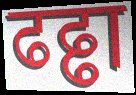
ढढ्ढा